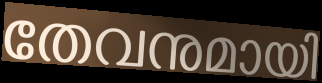
തേവനുമായി